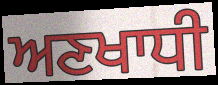
ਅਣਖਾਧੀ